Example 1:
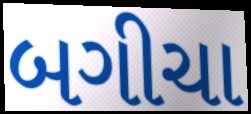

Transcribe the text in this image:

બગીચા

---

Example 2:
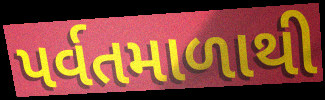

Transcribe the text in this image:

પર્વતમાળાથી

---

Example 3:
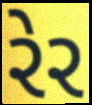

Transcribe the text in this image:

રેર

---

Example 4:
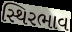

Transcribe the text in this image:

સ્થિરભાવ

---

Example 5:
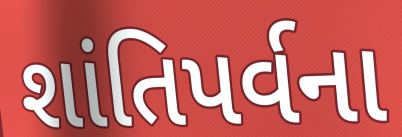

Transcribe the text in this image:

શાંતિપર્વના